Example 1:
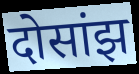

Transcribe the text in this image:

दोसांझ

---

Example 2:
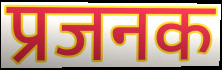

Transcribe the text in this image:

प्रजनक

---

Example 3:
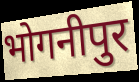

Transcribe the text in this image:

भोगनीपुर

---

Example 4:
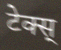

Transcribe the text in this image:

टेक्स्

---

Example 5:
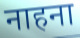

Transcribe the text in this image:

नाहना